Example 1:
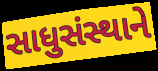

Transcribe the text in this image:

સાધુસંસ્થાને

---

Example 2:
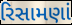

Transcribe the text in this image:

રિસામણાં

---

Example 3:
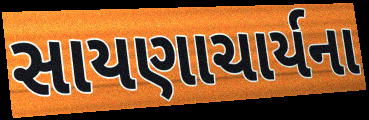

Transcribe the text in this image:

સાયણાચાર્યના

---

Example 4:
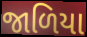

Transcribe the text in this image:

જાળિયા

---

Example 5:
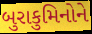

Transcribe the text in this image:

બુરાકુમિનોને